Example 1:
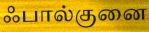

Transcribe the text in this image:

ஃபால்குனை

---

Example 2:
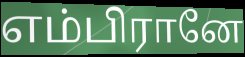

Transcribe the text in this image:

எம்பிரானே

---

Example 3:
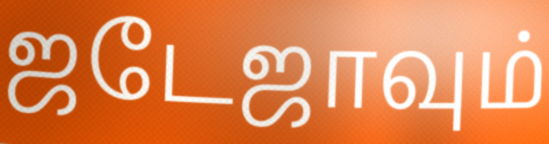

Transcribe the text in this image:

ஜடேஜாவும்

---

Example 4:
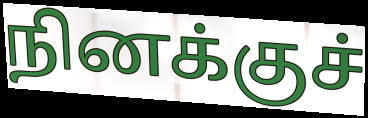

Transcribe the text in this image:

நினக்குச்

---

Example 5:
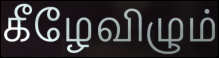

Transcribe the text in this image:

கீழேவிழும்